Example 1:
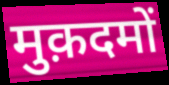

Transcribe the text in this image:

मुक़दमों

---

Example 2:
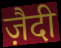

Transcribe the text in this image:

ज़ैदी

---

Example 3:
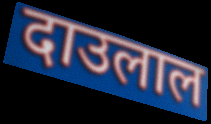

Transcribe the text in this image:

दाउलाल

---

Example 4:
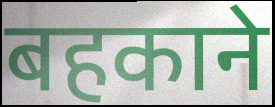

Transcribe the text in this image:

बहकाने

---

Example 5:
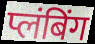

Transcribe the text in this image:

प्लंबिंग